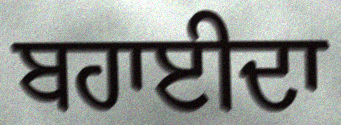
ਬਹਾਈਦਾ